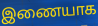
இணையாக